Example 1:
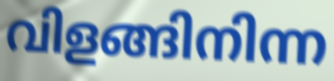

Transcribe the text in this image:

വിളങ്ങിനിന്ന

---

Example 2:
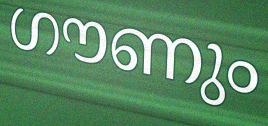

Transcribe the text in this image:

ഗൗണും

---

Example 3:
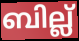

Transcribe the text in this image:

ബില്ല്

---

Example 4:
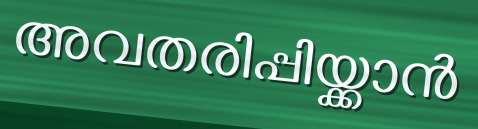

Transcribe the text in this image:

അവതരിപ്പിയ്ക്കാൻ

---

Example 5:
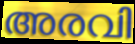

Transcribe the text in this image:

അരവി